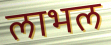
लाभल